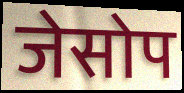
जेसोप